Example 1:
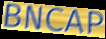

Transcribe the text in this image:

BNCAP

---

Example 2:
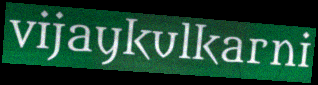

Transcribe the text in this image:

vijaykulkarni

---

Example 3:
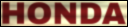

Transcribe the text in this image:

HONDA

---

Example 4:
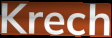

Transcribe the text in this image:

Krech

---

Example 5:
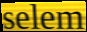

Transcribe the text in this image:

selem